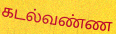
கடல்வண்ண